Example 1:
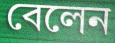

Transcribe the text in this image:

বেলেন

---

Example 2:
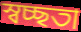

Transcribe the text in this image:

স্বচ্ছতা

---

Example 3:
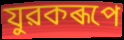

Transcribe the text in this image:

যুৱকৰূপে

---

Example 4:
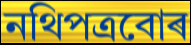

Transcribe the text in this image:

নথিপত্ৰবোৰ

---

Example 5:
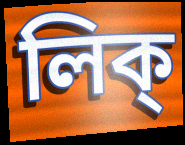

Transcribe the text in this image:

লিক্